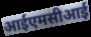
आईएमसीआई